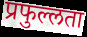
प्रफुल्लता